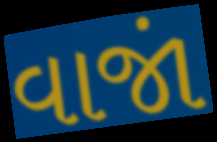
વાજાં